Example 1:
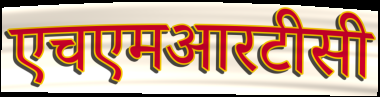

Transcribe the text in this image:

एचएमआरटीसी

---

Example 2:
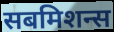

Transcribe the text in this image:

सबमिशन्स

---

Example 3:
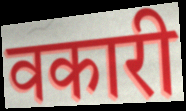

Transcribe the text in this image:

वकारी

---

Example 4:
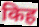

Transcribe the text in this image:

किह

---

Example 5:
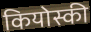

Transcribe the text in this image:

कियोस्की